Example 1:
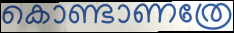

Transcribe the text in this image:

കൊണ്ടാണത്രേ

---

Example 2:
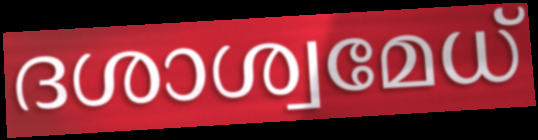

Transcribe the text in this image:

ദശാശ്വമേധ്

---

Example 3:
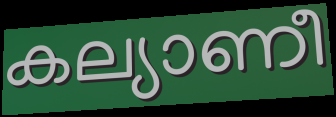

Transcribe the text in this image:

കല്യാണീ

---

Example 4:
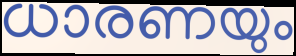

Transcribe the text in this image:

ധാരണയും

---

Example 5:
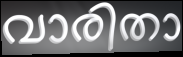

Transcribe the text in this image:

വാരിതാ